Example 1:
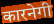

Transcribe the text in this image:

कारनेगी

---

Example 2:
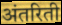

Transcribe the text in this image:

अंतरिती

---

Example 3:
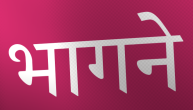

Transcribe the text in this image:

भागने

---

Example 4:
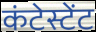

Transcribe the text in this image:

कंटेस्‍टेंट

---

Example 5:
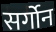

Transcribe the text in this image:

सर्गोन